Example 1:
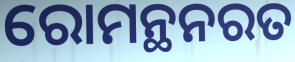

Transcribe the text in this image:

ରୋମନ୍ଥନରତ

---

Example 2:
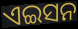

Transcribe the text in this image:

ଏଇସନ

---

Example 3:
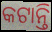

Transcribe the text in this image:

କଟାନ୍ତି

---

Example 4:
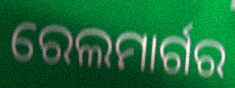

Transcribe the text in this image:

ରେଲମାର୍ଗର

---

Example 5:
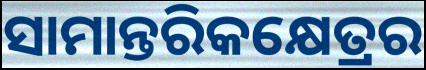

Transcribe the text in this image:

ସାମାନ୍ତରିକକ୍ଷେତ୍ରର